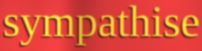
sympathise